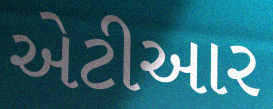
એટીઆર